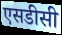
एसडीसी